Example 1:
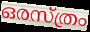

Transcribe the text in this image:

ഒരസ്ത്രം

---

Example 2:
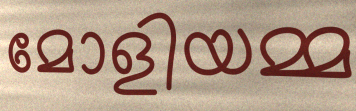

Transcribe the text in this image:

മോളിയമ്മ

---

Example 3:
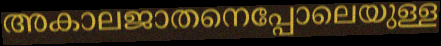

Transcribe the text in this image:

അകാലജാതനെപ്പോലെയുള്ള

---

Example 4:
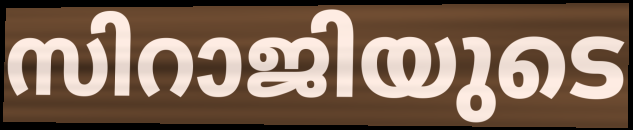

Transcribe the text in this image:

സിറാജിയുടെ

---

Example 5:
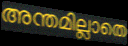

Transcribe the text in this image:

അന്തമില്ലാതെ